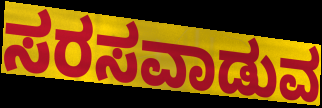
ಸರಸವಾಡುವ